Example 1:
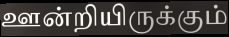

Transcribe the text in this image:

ஊன்றியிருக்கும்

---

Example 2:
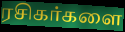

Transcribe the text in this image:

ரசிகர்களை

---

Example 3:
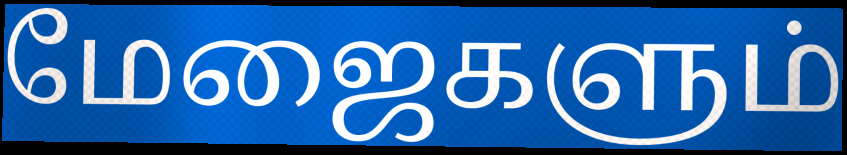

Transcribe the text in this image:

மேஜைகளும்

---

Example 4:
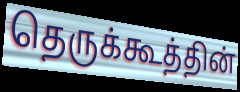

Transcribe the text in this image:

தெருக்கூத்தின்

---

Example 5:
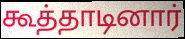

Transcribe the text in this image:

கூத்தாடினார்